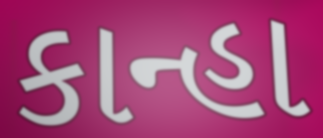
કાન્હા